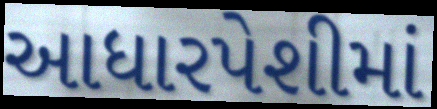
આધારપેશીમાં